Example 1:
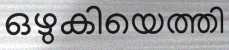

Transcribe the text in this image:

ഒഴുകിയെത്തി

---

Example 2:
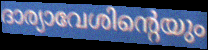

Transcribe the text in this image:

ദാര്യാവേശിന്റെയും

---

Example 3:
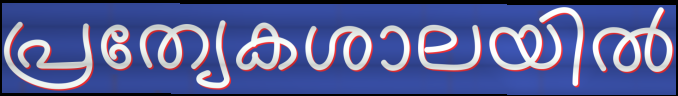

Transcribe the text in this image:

പ്രത്യേകശാലയിൽ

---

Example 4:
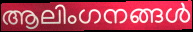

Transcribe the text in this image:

ആലിംഗനങ്ങൾ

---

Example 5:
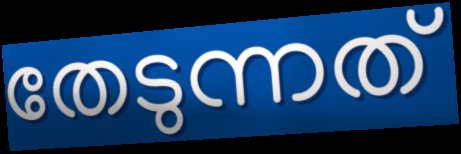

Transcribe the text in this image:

തേടുന്നത്